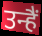
उन्‍हैं